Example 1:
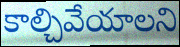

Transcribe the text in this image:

కాల్చివేయాలని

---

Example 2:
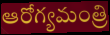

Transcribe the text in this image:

ఆరోగ్యమంత్రి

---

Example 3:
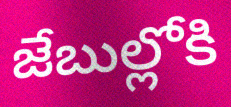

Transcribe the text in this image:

జేబుల్లోకి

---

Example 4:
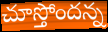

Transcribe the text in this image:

చూస్తోందన్న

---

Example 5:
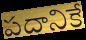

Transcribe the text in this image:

పదానికే